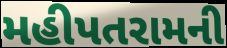
મહીપતરામની